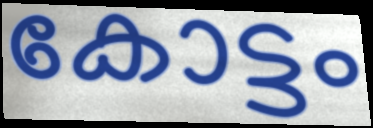
കോട്ടം